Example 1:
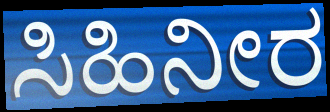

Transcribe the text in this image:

ಸಿಹಿನೀರ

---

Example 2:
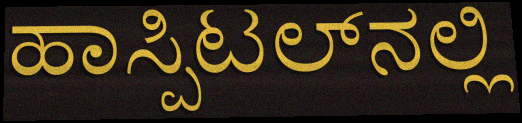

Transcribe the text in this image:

ಹಾಸ್ಪಿಟಲ್‌ನಲ್ಲಿ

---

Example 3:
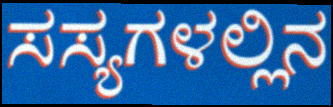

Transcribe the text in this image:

ಸಸ್ಯಗಳಲ್ಲಿನ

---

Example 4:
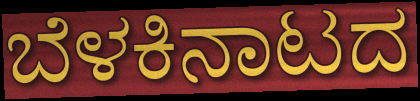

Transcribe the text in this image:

ಬೆಳಕಿನಾಟದ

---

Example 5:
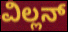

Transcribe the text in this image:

ವಿಲ್ಲನ್